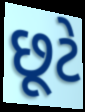
છૂટે